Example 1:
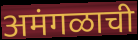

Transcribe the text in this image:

अमंगळाची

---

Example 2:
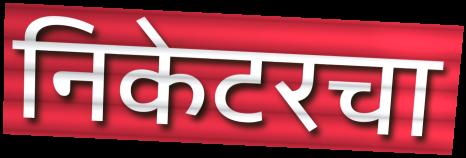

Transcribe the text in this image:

निकेटरचा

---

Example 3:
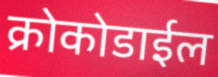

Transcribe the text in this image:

क्रोकोडाईल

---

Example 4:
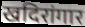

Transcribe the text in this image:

खदिरांगार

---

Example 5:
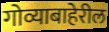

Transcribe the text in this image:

गोव्याबाहेरील